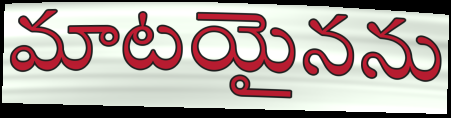
మాటయైనను